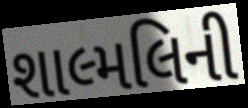
શાલ્મલિની